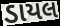
ડાયલ